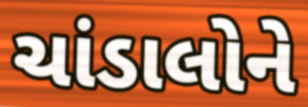
ચાંડાલોને